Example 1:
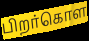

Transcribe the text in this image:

பிறர்கொள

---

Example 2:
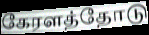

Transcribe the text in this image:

கேரளத்தோடு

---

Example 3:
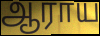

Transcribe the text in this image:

ஆராய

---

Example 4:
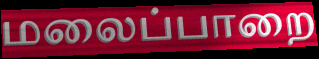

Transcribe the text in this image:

மலைப்பாறை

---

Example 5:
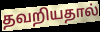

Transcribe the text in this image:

தவறியதால்